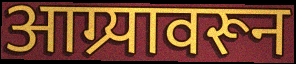
आग्र्यावरून